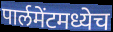
पार्लमेंटमध्येच